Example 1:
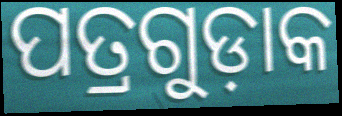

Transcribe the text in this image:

ପତ୍ରଗୁଡ଼ାକ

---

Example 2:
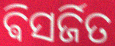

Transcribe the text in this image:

ଵିସର୍ଜିତ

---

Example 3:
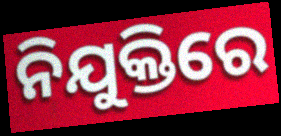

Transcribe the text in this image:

ନିଯୁକ୍ତିରେ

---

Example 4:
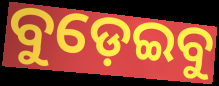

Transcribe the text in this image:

ବୁଡ଼େଇବୁ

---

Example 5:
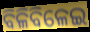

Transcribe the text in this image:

ବିଳିବିଳେଇ